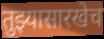
तुझ्यासारखेच